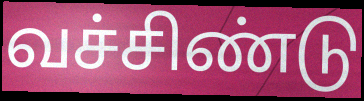
வச்சிண்டு